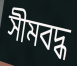
সীমবদ্ধ